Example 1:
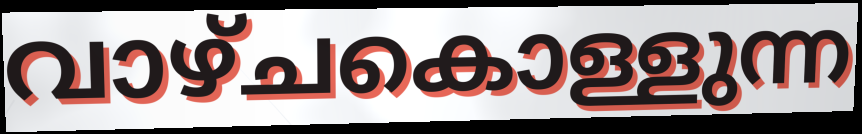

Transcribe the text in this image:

വാഴ്ചകൊള്ളുന്ന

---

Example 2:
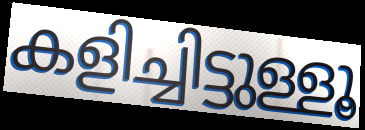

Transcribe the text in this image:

കളിച്ചിട്ടുള്ളൂ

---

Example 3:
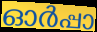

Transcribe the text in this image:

ഓർപ്പാ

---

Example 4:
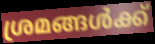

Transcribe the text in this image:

ശ്രമങ്ങൾക്ക്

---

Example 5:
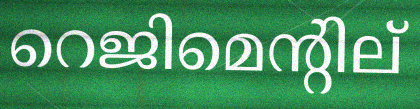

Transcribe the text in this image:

റെജിമെന്റില്